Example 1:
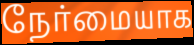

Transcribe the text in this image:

நேர்மையாக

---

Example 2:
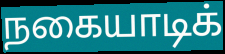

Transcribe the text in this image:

நகையாடிக்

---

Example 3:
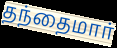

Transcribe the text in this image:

தந்தைமார்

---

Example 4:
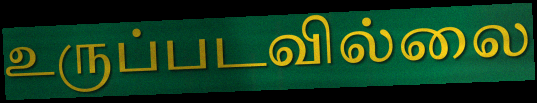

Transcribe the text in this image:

உருப்படவில்லை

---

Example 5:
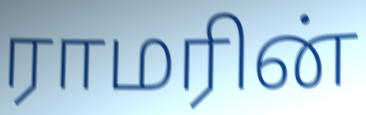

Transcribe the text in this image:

ராமரின்